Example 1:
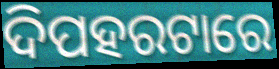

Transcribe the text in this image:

ଦିପହରଟାରେ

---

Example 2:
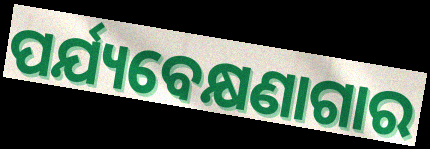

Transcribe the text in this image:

ପର୍ଯ୍ୟବେକ୍ଷଣାଗାର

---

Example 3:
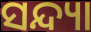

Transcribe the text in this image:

ସନ୍ଦ୍ୟା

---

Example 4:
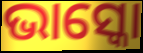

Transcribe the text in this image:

ଭାସ୍କୋ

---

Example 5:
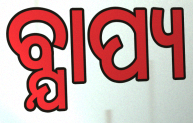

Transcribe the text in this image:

ବ୍ଯାପ୍ୟ